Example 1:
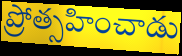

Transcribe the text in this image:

ప్రోత్సహించాడు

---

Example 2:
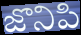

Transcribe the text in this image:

జొనిపి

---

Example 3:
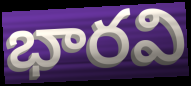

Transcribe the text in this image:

భారవి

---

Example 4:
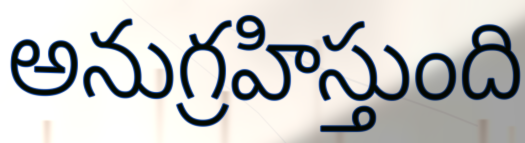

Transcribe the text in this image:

అనుగ్రహిస్తుంది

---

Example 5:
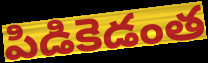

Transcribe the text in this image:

పిడికెడంత